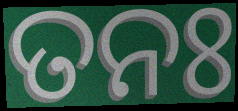
ତନଃ